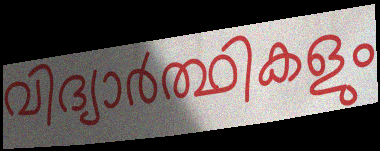
വിദ്യാർത്ഥികളും